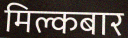
मिल्कबार